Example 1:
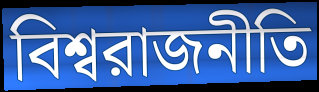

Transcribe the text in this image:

বিশ্বরাজনীতি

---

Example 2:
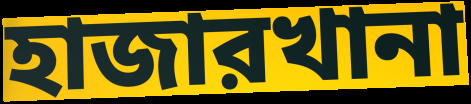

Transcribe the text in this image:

হাজারখানা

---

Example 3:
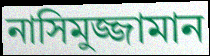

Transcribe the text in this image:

নাসিমুজ্জামান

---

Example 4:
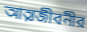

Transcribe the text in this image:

আত্মজীবনীর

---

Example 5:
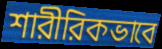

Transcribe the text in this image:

শারীরিকভাবে